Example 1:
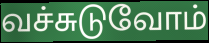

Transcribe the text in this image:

வச்சுடுவோம்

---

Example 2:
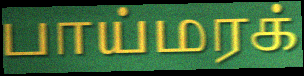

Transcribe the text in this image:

பாய்மரக்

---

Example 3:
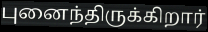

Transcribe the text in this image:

புனைந்திருக்கிறார்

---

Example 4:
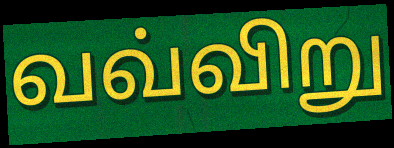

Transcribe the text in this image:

வவ்விறு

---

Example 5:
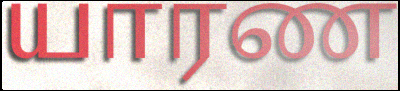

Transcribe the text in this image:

யாரண